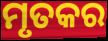
ମୃତକର